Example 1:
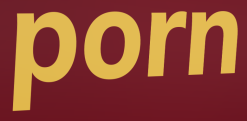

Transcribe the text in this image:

porn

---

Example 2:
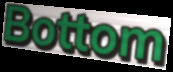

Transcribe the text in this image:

Bottom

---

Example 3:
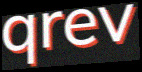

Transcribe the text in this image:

qrev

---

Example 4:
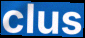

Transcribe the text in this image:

clus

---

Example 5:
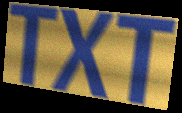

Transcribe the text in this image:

TXT